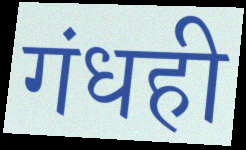
गंधही